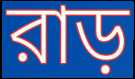
রাড়